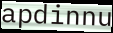
apdinnu